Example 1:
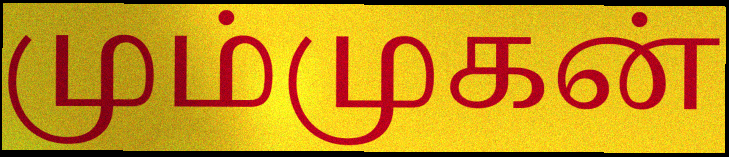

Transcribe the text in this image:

மும்முகன்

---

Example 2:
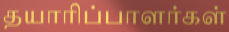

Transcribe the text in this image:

தயாரிப்பாளர்கள்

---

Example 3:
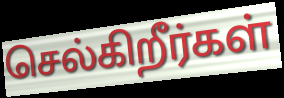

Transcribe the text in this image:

செல்கிறீர்கள்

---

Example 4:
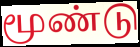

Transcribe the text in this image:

மூண்டு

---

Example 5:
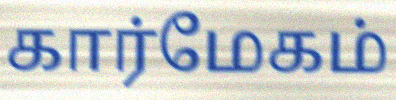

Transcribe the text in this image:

கார்மேகம்